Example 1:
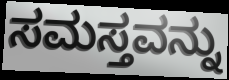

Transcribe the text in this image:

ಸಮಸ್ತವನ್ನು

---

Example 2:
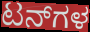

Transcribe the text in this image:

ಟನ್‌ಗಳ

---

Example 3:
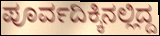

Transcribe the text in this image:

ಪೂರ್ವದಿಕ್ಕಿನಲ್ಲಿದ್ದ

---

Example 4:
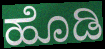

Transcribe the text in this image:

ಹೊಡಿ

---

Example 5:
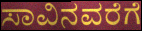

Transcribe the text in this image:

ಸಾವಿನವರೆಗೆ